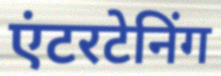
एंटरटेनिंग